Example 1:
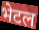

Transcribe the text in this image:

भेटल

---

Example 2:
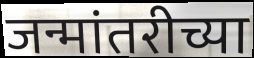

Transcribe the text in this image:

जन्मांतरीच्या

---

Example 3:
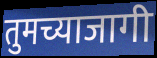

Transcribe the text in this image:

तुमच्याजागी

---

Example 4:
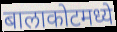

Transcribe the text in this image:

बालाकोटमध्ये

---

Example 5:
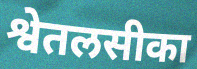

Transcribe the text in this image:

श्वेतलसीका